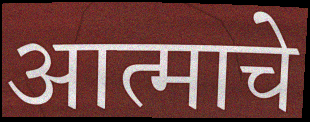
आत्माचे